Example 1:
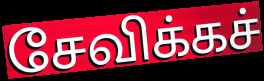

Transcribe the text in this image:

சேவிக்கச்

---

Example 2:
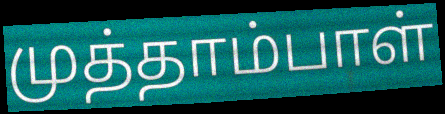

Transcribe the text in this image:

முத்தாம்பாள்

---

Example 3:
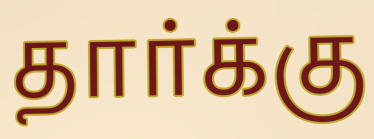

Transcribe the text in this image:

தார்க்கு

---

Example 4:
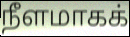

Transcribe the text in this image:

நீளமாகக்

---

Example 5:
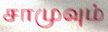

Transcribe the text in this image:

சாமுவும்